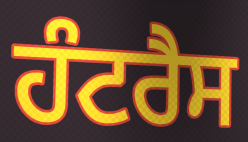
ਹੰਟਰੈਸ